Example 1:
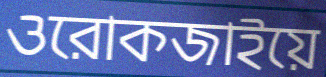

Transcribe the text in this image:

ওরোকজাইয়ে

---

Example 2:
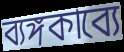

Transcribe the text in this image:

ব্যঙ্গকাব্যে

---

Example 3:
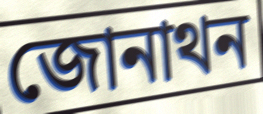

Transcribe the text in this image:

জোনাথন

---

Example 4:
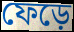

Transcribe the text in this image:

ফেড়ে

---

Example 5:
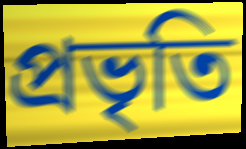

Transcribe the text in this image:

প্রভৃতি